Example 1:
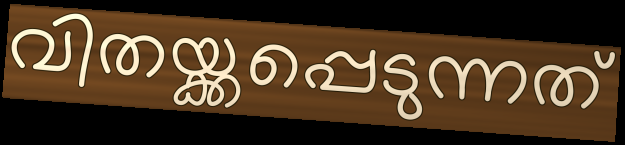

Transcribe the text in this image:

വിതയ്ക്കപ്പെടുന്നത്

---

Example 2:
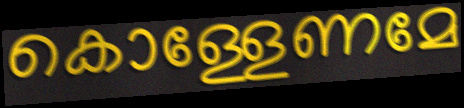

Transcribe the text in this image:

കൊള്ളേണമേ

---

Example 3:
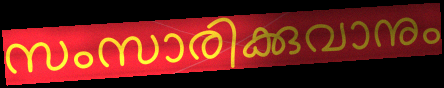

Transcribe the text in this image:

സംസാരിക്കുവാനും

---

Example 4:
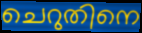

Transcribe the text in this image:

ചെറുതിനെ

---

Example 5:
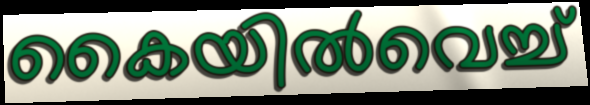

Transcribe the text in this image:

കൈയിൽവെച്ച്